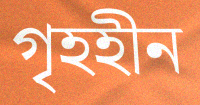
গৃহহীন